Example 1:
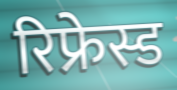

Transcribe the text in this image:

रिफ्रेस्ड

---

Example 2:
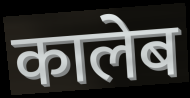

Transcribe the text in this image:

कालेब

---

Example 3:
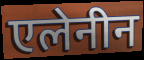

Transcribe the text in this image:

एलेनीन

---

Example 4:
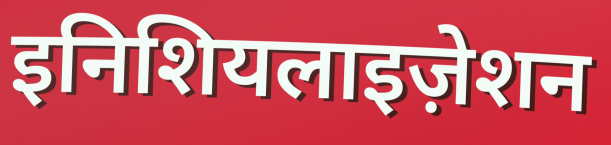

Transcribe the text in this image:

इनिशियलाइज़ेशन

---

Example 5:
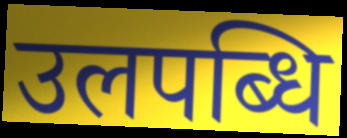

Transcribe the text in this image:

उलपब्धि